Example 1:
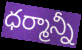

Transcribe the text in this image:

ధర్మాన్నీ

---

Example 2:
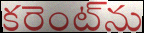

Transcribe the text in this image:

కరెంట్‌ను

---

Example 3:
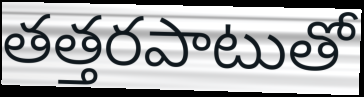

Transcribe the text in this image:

తత్తరపాటుతో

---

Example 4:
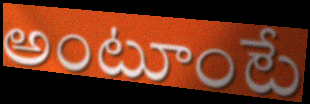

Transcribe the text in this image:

అంటూంటే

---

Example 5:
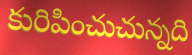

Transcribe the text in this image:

కురిపించుచున్నది